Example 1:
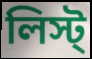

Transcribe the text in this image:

লিস্ট্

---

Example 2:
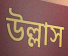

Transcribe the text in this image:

উল্লাস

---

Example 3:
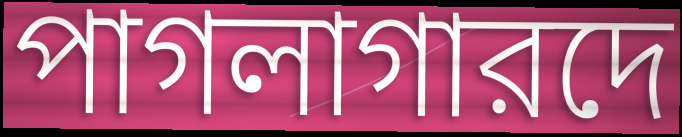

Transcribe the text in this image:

পাগলাগারদে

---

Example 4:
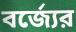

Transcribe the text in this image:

বর্জ্যের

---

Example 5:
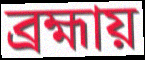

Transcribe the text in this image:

ব্রহ্মায়